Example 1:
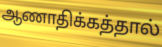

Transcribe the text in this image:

ஆணாதிக்கத்தால்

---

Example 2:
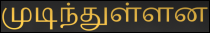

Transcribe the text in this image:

முடிந்துள்ளன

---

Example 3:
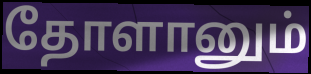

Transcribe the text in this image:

தோளானும்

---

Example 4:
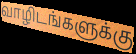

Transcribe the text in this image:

வாழிடங்களுக்கு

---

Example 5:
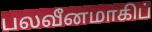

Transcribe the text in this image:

பலவீனமாகிப்